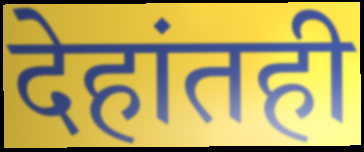
देहांतही